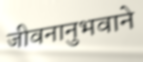
जीवनानुभवाने